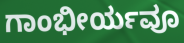
ಗಾಂಭೀರ್ಯವೂ